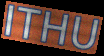
ITHU